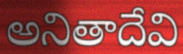
అనితాదేవి